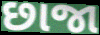
છાજા